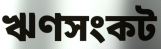
ঋণসংকট